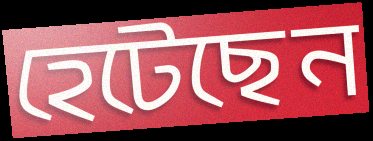
হেটেছেন